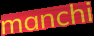
manchi